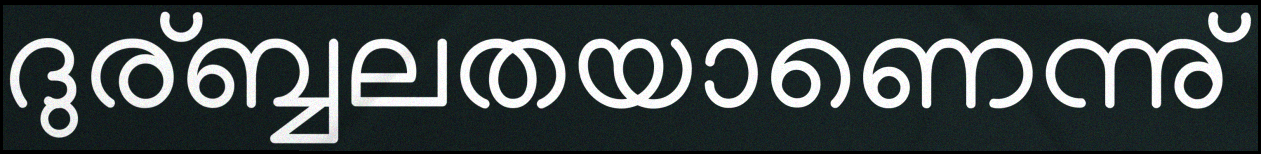
ദുര്ബ്ബലതയാണെന്നു്